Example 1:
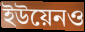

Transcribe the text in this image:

ইউয়েনও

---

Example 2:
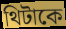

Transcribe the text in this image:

থিটাকে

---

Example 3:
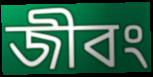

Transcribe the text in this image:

জীবং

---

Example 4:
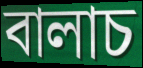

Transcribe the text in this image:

বালাচ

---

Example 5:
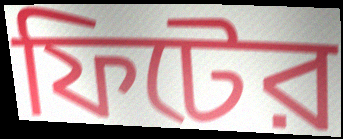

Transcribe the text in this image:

ফিটের